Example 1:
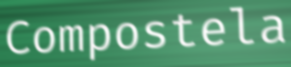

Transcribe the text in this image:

Compostela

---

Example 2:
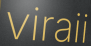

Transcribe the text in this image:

viraii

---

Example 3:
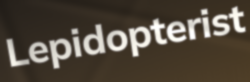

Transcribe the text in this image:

Lepidopterist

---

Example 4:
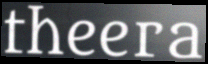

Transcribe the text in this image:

theera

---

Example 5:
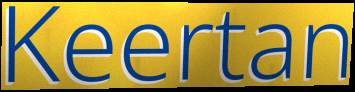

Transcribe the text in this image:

Keertan